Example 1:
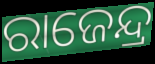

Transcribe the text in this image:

ରାଜେନ୍ଦ୍ର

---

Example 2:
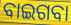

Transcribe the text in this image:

ବାଇଗବା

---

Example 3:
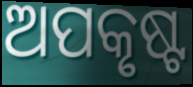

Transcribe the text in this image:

ଅପକୃଷ୍ଟ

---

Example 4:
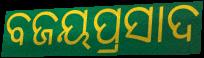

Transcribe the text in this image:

ବଜୟପ୍ରସାଦ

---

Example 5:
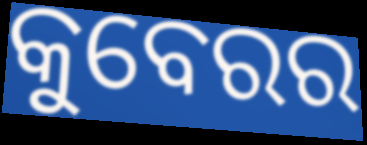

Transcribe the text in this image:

କୁବେରର